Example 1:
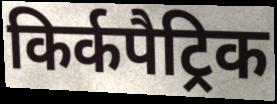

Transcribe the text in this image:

किर्कपैट्रिक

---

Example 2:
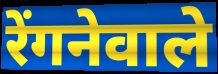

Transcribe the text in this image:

रेंगनेवाले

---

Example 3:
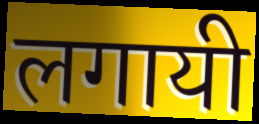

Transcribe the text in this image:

लगायी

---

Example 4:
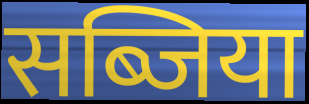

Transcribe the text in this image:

सब्ज़िया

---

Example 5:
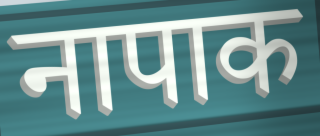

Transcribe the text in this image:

नापाक